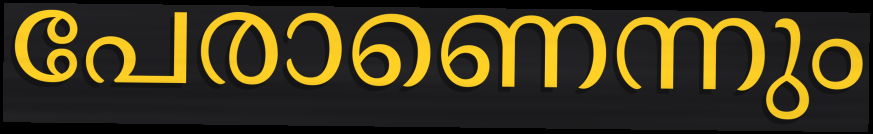
പേരാണെന്നും